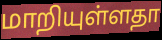
மாறியுள்ளதா